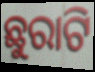
ଛୁରାଟି